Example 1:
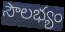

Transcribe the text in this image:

సౌలభ్యం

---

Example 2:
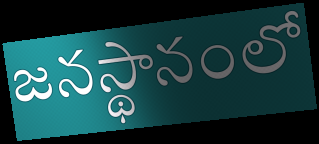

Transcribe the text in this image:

జనస్థానంలో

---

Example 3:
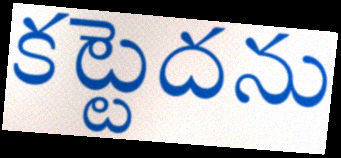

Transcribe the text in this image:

కట్టెదను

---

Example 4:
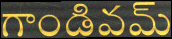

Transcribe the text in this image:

గాండివమ్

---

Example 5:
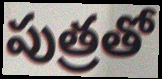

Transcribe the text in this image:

పుత్రతో